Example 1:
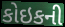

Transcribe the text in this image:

કોઇકની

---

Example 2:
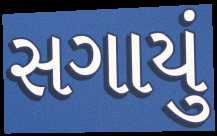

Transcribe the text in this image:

સગાયું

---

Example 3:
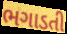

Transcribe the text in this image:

ભગાડતી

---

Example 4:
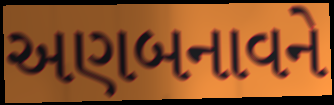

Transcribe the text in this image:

અણબનાવને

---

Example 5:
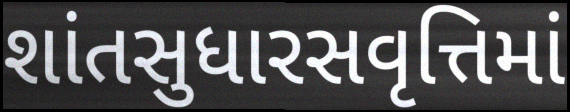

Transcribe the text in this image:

શાંતસુધારસવૃત્તિમાં